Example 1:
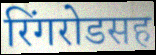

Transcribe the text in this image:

रिंगरोडसह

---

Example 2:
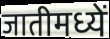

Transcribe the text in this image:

जातीमध्यें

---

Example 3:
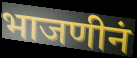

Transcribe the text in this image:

भाजणीनं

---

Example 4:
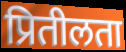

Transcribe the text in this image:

प्रितीलता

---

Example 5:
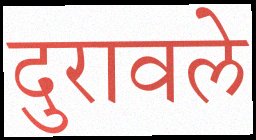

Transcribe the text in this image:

दुरावले